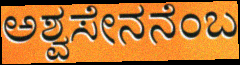
ಅಶ್ವಸೇನನೆಂಬ